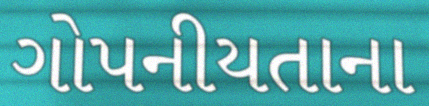
ગોપનીયતાના